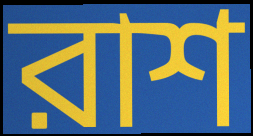
রাশ